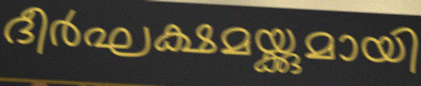
ദീർഘക്ഷമയ്ക്കുമായി